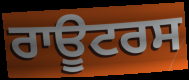
ਰਾਊਟਰਸ